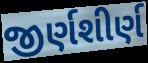
જીર્ણશીર્ણ